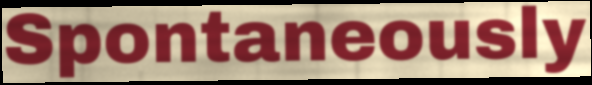
Spontaneously